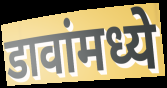
डावांमध्ये